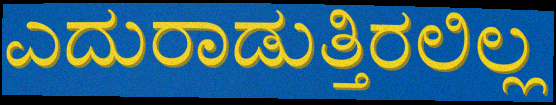
ಎದುರಾಡುತ್ತಿರಲಿಲ್ಲ